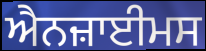
ਐਨਜ਼ਾਈਮਸ